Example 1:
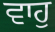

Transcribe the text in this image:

ਵਾਹੁ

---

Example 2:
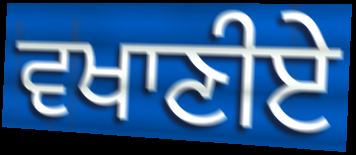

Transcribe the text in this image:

ਵਖਾਣੀਏ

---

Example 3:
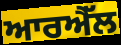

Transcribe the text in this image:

ਆਰਐੱਲ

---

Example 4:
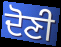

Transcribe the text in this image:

ਦੋਣੀ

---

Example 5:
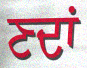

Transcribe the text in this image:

ਣਦਾਂ